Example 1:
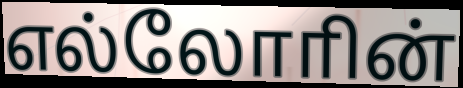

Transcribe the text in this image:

எல்லோரின்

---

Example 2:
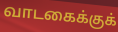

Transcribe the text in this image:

வாடகைக்குக்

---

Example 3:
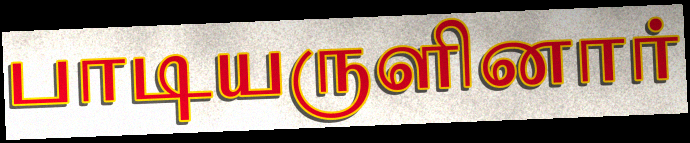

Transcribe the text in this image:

பாடியருளினார்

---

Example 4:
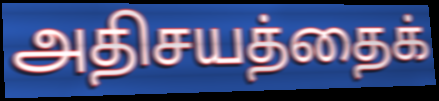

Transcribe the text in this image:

அதிசயத்தைக்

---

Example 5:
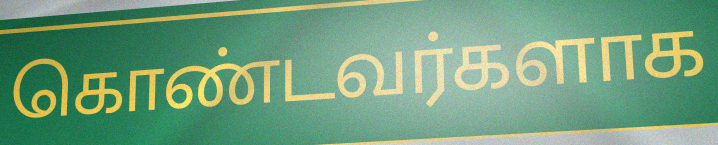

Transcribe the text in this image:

கொண்டவர்களாக